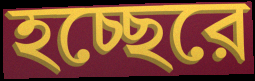
হচ্ছেরে